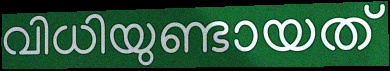
വിധിയുണ്ടായത്